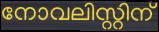
നോവലിസ്റ്റിന്